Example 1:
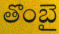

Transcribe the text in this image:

తొంబై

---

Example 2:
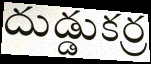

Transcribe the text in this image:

దుడ్డుకర్ర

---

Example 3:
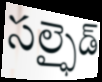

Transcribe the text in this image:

సల్ఫైడ్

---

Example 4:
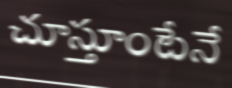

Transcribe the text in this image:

చూస్తూంటేనే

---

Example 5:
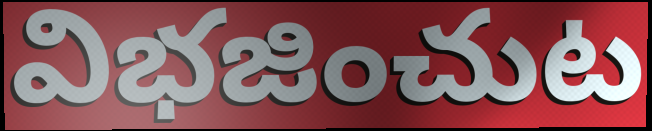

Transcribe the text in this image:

విభజించుట